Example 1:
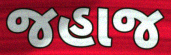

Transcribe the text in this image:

જહાજ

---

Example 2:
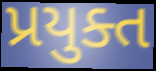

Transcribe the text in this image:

પ્રયુક્ત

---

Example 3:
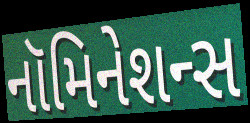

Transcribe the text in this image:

નૉમિનેશન્સ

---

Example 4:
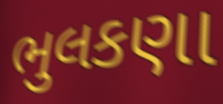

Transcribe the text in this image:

ભુલકણા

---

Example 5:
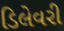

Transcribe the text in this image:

ડિલેવરી